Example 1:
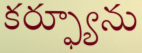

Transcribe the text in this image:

కర్ఫ్యూను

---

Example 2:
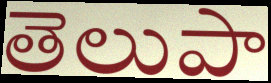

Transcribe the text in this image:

తెలుపా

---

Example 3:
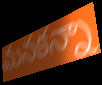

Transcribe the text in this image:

మనకన్నా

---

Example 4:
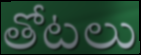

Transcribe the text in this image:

తోటలు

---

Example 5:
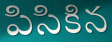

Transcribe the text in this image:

పిసికిన